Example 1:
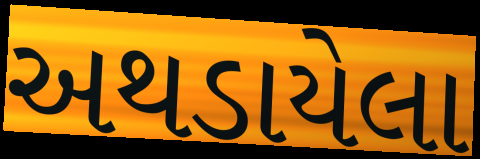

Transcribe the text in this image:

અથડાયેલા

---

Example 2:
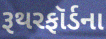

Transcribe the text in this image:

રૂથરફૉર્ડના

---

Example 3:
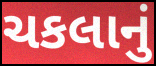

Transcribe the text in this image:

ચકલાનું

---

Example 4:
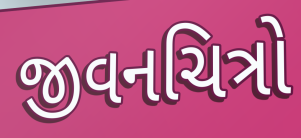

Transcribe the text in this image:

જીવનચિત્રો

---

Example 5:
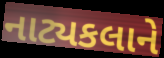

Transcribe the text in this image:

નાટ્યકલાને